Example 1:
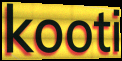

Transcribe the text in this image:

kooti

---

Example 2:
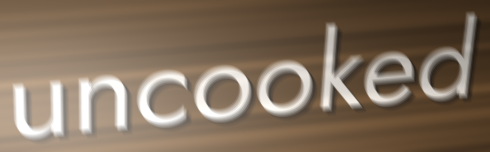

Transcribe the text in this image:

uncooked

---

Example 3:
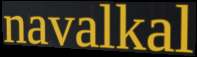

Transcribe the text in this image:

navalkal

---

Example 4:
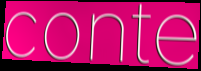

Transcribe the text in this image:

conte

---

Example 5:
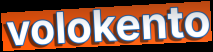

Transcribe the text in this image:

volokento